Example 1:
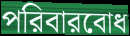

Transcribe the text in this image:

পরিবারবোধ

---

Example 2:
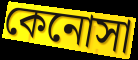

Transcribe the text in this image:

কেনোসা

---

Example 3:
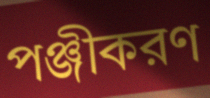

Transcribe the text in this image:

পঞ্জীকরণ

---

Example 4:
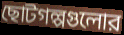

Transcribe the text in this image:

ছোটগল্পগুলোর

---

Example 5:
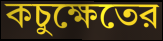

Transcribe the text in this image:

কচুক্ষেতের